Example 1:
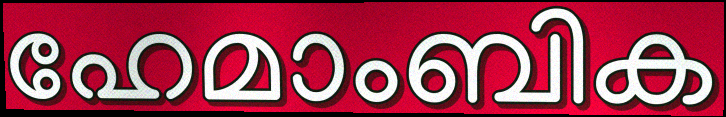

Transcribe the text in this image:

ഹേമാംബിക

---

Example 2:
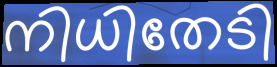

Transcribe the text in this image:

നിധിതേടി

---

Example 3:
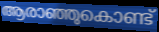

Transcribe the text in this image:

ആരാഞ്ഞുകൊണ്ട്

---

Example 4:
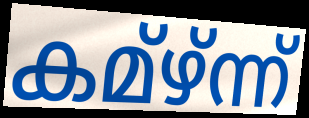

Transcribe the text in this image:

കമ്ഴ്ന്ന്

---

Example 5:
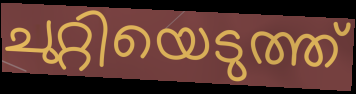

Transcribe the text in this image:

ചുറ്റിയെടുത്ത്